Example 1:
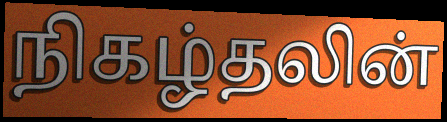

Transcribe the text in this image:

நிகழ்தலின்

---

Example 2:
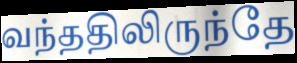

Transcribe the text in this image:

வந்ததிலிருந்தே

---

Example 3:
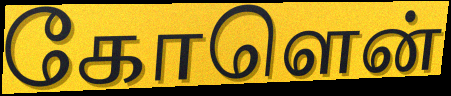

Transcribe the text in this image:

கோளென்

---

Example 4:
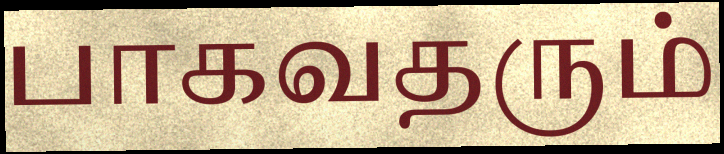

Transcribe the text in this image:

பாகவதரும்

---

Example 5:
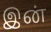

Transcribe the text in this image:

இன்